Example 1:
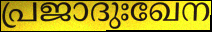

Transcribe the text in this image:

പ്രജാദുഃഖേന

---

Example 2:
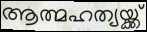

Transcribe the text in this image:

ആത്മഹത്യയ്ക്ക്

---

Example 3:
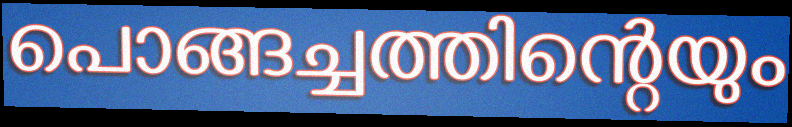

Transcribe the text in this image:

പൊങ്ങച്ചത്തിന്റെയും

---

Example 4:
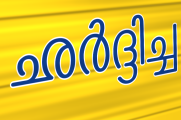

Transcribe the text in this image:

ഛർദ്ദിച്ച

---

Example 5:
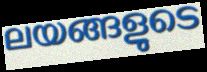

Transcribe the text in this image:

ലയങ്ങളുടെ